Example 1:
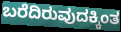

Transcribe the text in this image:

ಬರೆದಿರುವುದಕ್ಕಿಂತ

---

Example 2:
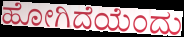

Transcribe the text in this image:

ಹೋಗಿದೆಯೆಂದು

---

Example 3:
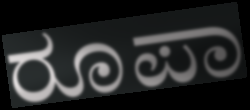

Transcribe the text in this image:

ರೂಪಾ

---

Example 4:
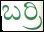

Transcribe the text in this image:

ಬರ್ರಿ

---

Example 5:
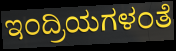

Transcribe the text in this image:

ಇಂದ್ರಿಯಗಳಂತೆ